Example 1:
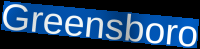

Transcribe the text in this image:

Greensboro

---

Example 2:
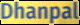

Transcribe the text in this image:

Dhanpal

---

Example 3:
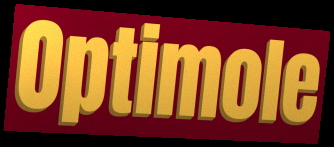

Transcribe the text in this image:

Optimole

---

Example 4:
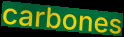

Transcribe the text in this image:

carbones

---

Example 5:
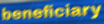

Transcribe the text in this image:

beneficiary